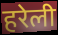
हरेली